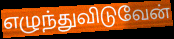
எழுந்துவிடுவேன்